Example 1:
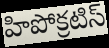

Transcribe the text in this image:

హిపోక్రటిస్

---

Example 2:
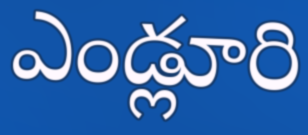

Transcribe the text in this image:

ఎండ్లూరి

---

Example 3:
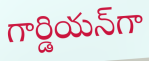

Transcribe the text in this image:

గార్డియన్‌గా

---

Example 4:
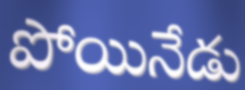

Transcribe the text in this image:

పోయినేడు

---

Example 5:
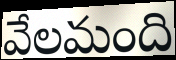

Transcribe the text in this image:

వేలమంది